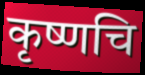
कृष्णचि